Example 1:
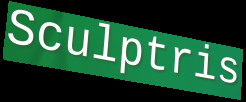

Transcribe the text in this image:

Sculptris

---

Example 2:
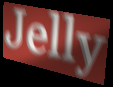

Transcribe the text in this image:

Jelly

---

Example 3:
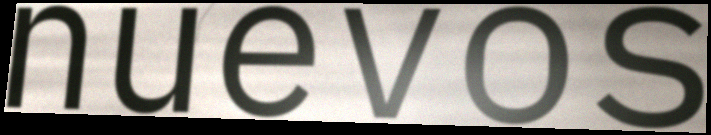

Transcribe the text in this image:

nuevos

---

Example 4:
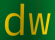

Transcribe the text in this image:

dw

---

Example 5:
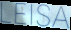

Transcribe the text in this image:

LEISA